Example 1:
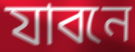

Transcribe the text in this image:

যাবনে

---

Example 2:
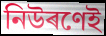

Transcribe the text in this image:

নিউৰণেই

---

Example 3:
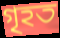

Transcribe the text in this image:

গৃহত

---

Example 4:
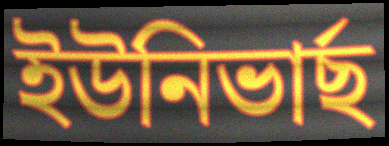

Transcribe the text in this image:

ইউনিভাৰ্ছ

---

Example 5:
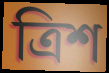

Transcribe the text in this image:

ত্ৰিশ